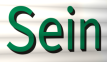
Sein